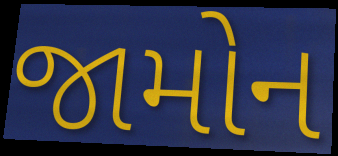
જામોન